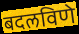
बदलविणे